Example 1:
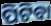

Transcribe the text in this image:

ପିଟିବା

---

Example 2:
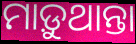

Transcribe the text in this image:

ମାଡ଼ୁଥାନ୍ତା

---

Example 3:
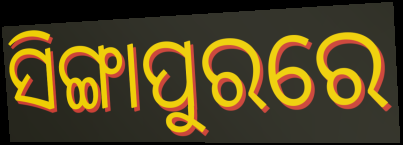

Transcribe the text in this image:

ସିଙ୍ଗାପୁରରେ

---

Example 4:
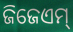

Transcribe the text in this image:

ଜିଜେଏମ୍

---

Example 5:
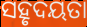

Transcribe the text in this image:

ସହୃଦୟତା